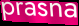
prasna